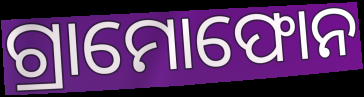
ଗ୍ରାମୋଫୋନ